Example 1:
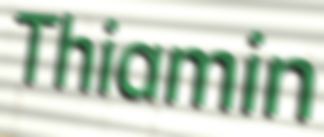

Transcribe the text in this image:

Thiamin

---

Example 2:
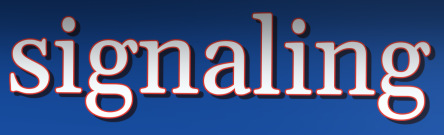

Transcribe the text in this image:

signaling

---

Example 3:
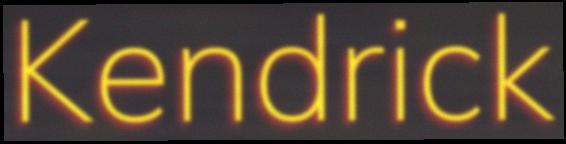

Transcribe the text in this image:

Kendrick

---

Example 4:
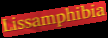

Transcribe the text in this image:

Lissamphibia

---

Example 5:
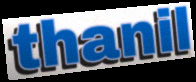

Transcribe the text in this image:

thanil